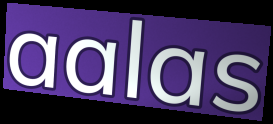
aalas